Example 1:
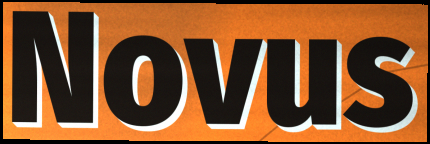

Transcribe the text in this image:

Novus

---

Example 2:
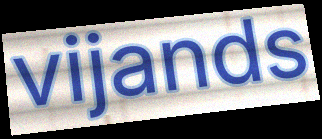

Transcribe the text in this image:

vijands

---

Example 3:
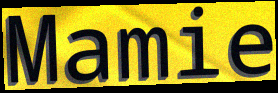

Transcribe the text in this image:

Mamie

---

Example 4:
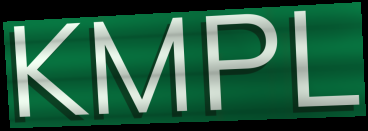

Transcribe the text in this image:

KMPL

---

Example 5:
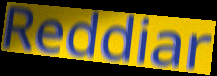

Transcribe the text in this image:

Reddiar